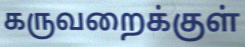
கருவறைக்குள்